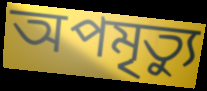
অপমৃত্যু